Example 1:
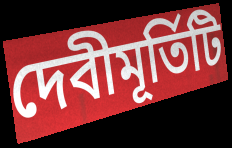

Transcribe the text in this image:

দেবীমূর্তিটি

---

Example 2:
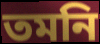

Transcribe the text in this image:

তমনি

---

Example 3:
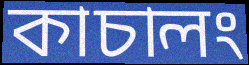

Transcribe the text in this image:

কাচালং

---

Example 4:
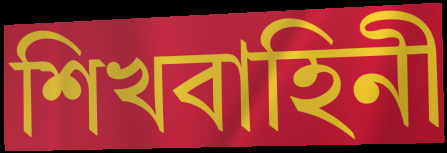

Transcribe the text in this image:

শিখবাহিনী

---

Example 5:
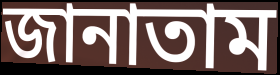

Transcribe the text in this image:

জানাতাম